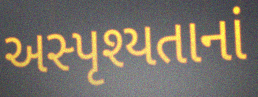
અસ્પૃશ્યતાનાં